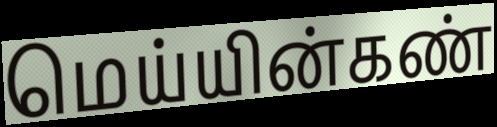
மெய்யின்கண்